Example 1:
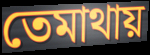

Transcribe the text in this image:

তেমাথায়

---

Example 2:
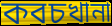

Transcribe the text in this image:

কবচখানা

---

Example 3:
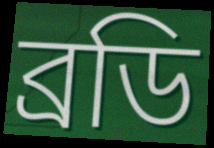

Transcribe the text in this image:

ব্রডি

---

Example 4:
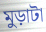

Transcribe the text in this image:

মুড়াটা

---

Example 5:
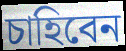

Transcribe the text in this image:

চাহিবেন